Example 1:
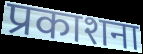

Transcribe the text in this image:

प्रकाशना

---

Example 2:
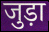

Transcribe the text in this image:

जुड़ा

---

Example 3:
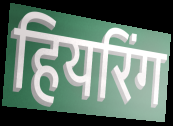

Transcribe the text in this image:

हियरिंग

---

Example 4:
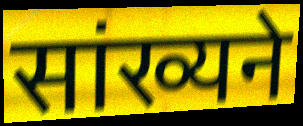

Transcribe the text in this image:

सांख्यने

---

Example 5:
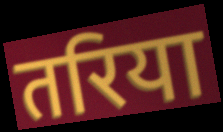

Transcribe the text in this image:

तरिया